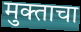
मुक्ताचा